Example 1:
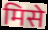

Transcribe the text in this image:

मिसे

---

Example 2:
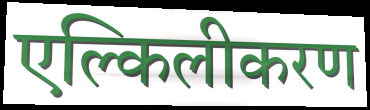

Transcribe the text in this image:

एल्किलीकरण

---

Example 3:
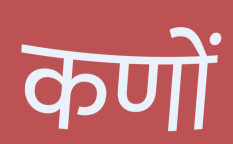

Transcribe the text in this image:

कणों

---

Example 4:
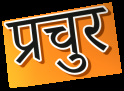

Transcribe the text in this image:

प्रचुर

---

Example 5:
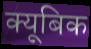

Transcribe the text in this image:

क्यूबिक